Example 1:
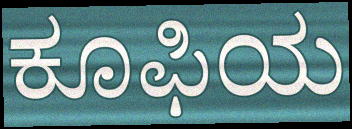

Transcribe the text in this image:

ಕೂಫಿಯ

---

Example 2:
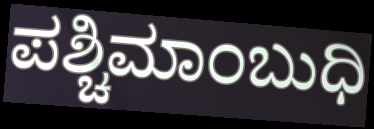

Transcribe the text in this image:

ಪಶ್ಚಿಮಾಂಬುಧಿ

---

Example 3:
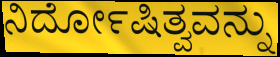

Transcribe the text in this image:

ನಿರ್ದೋಷಿತ್ವವನ್ನು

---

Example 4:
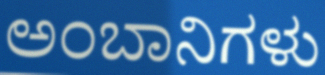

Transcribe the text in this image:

ಅಂಬಾನಿಗಳು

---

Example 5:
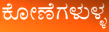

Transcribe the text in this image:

ಕೋಣೆಗಳುಳ್ಳ